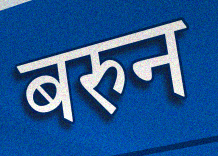
बरुन